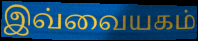
இவ்வையகம்